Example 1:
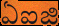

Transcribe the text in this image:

ఏఐజి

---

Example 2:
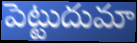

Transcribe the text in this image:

పెట్టుదుమా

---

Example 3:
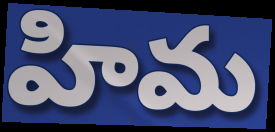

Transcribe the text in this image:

హిమ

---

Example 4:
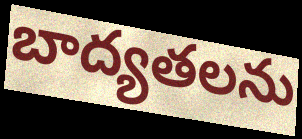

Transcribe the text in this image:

బాద్యతలను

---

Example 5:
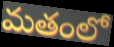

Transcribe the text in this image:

మతంలో